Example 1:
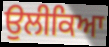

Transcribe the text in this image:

ਉਲੀਕਿਆ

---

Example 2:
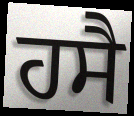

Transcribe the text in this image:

ਹਸੈ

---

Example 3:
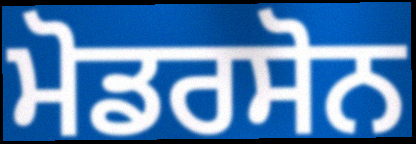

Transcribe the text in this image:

ਮੋਡਰਸੋਨ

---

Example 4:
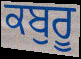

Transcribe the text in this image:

ਕਬੁਰੂ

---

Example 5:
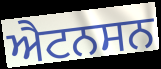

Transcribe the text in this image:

ਐਟਨਸਨ